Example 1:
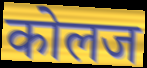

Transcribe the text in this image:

कोलज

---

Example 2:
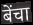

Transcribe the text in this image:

बेंचा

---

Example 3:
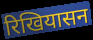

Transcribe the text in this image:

रिखियासन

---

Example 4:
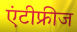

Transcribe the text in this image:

एंटीफ्रीज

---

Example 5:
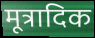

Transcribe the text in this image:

मूत्रादिक